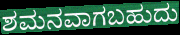
ಶಮನವಾಗಬಹುದು